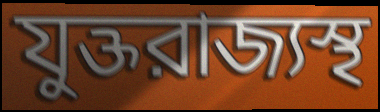
যুক্তরাজ্যস্থ